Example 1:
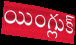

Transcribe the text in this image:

యింగ్లుక్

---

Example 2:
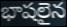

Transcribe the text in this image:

భాషలైన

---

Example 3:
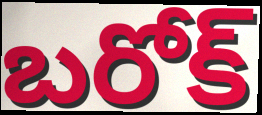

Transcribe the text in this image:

బరోక్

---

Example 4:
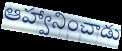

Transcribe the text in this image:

ఆహ్వానించాడు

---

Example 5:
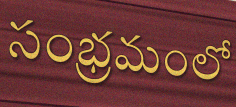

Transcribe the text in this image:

సంభ్రమంలో